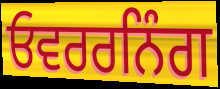
ਓਵਰਰਨਿੰਗ